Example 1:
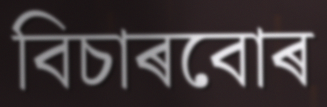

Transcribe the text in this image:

বিচাৰবোৰ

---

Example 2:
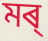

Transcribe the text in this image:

মৰ্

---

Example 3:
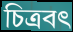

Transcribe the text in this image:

চিত্ৰবৎ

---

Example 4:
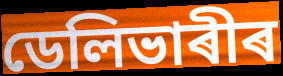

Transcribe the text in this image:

ডেলিভাৰীৰ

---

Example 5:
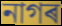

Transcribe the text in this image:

নাগৰ